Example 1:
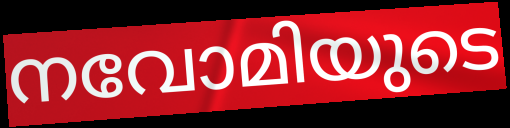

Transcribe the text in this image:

നവോമിയുടെ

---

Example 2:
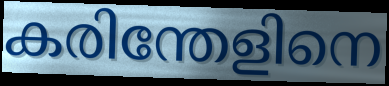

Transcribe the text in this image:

കരിന്തേളിനെ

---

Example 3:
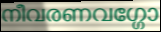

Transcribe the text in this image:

നീവരണവഗ്ഗോ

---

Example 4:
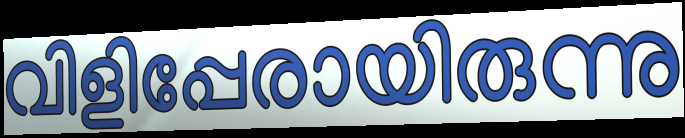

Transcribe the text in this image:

വിളിപ്പേരായിരുന്നു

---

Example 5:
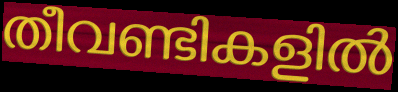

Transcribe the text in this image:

തീവണ്ടികളിൽ